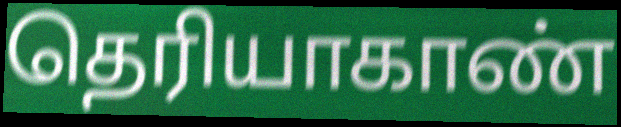
தெரியாகாண்